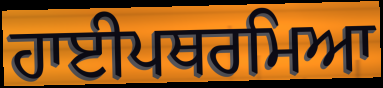
ਹਾਈਪਥਰਮਿਆ